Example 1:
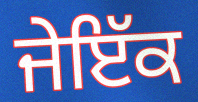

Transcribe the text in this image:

ਜੇਇੱਕ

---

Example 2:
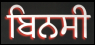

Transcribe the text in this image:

ਬਿਨਸੀ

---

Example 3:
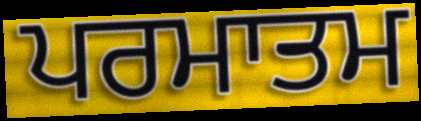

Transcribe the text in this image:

ਪਰਮਾਤਮ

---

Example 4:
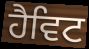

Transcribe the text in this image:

ਹੈਵਿਟ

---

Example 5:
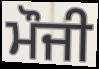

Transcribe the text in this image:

ਮੌਜੀ